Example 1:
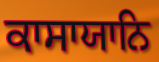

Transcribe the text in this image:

ਕਾਸਾਯਾਨਿ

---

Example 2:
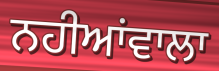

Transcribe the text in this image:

ਨਹੀਆਂਵਾਲਾ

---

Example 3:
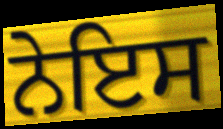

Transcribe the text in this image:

ਨੇਇਸ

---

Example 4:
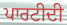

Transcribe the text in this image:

ਪਾਰਟੀਦੀ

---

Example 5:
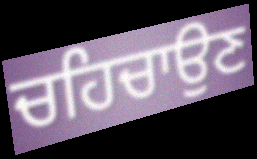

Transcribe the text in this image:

ਚਹਿਚਾਉਣ